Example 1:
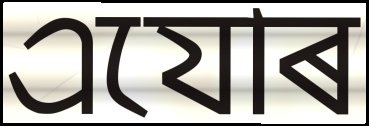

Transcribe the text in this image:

এযোৰ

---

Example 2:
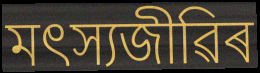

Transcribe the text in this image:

মৎস্যজীৱিৰ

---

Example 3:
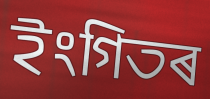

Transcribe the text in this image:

ইংগিতৰ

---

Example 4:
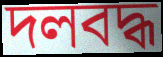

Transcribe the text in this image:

দলবদ্ধ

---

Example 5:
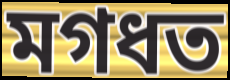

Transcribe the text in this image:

মগধত